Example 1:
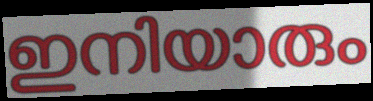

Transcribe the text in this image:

ഇനിയാരും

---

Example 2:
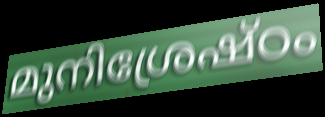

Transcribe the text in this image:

മുനിശ്രേഷ്ഠം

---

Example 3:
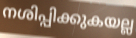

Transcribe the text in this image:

നശിപ്പിക്കുകയല്ല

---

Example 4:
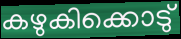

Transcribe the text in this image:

കഴുകിക്കൊടു്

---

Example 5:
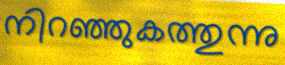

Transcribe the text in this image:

നിറഞ്ഞുകത്തുന്നു